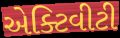
એક્ટિવીટી